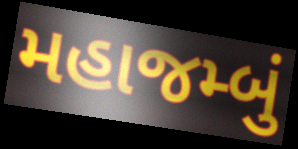
મહાજમ્બું